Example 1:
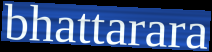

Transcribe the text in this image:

bhattarara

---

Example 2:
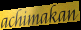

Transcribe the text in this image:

achimakan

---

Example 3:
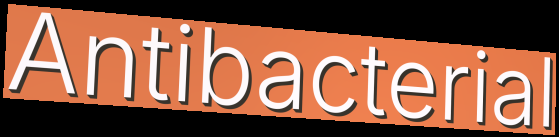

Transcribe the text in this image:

Antibacterial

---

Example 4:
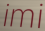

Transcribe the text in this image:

imi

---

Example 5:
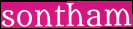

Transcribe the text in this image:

sontham